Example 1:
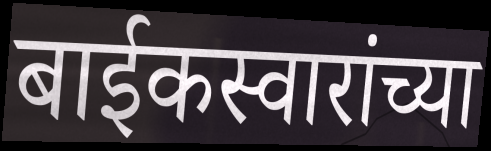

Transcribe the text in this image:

बाईकस्वारांच्या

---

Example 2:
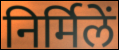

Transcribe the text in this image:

निर्मिलें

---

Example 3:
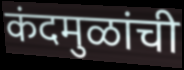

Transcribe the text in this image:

कंदमुळांची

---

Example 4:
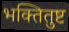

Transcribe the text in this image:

भक्तितुष्ट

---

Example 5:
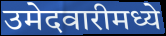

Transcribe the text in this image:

उमेदवारीमध्ये